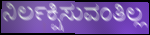
ನಿರ್ಲಕ್ಷಿಸುವಂತಿಲ್ಲ